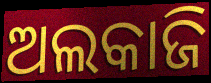
ଅଲକାଜି